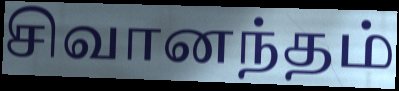
சிவானந்தம்